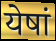
येषां